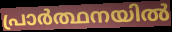
പ്രാർത്ഥനയിൽ